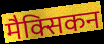
मैक्सिकन